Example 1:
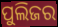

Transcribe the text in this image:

ପୁଲିଜର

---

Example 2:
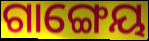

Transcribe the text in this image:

ଗାଙ୍ଗେୟ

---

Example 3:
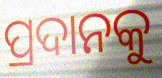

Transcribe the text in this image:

ପ୍ରଦାନକୁ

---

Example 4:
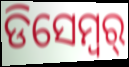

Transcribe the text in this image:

ଡିସେମ୍ବର୍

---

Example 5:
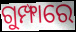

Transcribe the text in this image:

ଗୁମ୍ଫାରେ